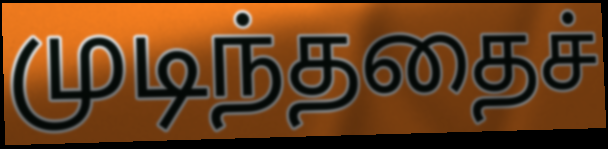
முடிந்ததைச்